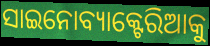
ସାଇନୋବ୍ୟାକ୍ଟେରିଆକୁ